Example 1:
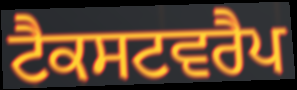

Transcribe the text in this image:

ਟੈਕਸਟਵਰੈਪ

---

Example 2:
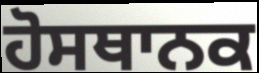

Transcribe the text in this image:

ਹੋਸਥਾਨਕ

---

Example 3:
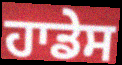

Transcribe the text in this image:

ਹਾਡੇਸ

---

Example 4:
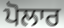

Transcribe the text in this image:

ਪੋਲਾਰ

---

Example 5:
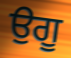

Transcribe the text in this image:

ਉਗੂ